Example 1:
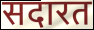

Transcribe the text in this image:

सदारत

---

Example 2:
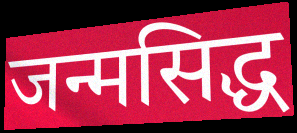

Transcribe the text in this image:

जन्‍मसिद्ध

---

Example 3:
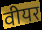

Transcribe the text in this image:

वीयर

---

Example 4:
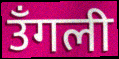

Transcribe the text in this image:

उँगली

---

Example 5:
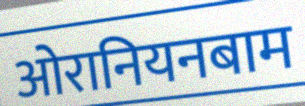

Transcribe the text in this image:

ओरानियनबाम